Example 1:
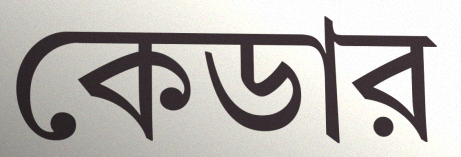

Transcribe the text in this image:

কেডার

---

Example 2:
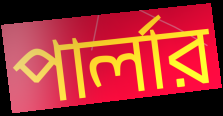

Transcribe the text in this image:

পার্লার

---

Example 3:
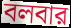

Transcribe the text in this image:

বলবার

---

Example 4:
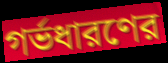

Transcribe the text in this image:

গর্ভধারণের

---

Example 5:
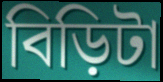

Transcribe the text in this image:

বিড়িটা